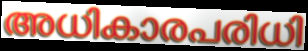
അധികാരപരിധി